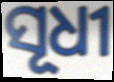
ସୂଧୀ